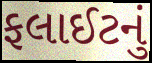
ફલાઈટનું